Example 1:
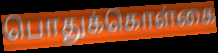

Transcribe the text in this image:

பொதுக்கொள்கை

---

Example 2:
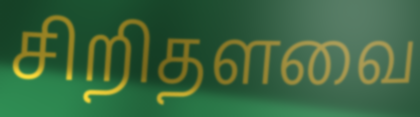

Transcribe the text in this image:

சிறிதளவை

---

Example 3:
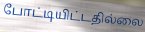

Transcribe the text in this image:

போட்டியிட்டதில்லை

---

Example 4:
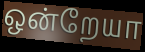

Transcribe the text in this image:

ஒன்றேயா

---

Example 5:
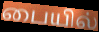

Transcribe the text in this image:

பையில்